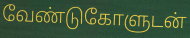
வேண்டுகோளுடன்